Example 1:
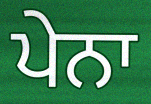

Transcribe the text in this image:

ਪੇਨਾ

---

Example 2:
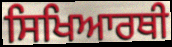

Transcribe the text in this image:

ਸਿਖਿਆਰਥੀ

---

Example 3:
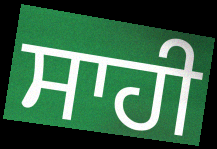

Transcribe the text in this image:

ਸਾਹੀ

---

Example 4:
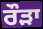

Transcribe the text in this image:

ਰੌੜਾ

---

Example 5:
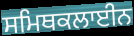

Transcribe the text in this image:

ਸਮਿਥਕਲਾਈਨ